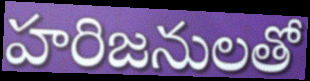
హరిజనులతో